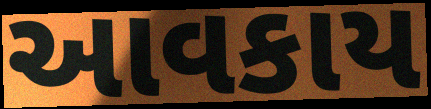
આવકાય